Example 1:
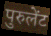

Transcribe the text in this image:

पुरुलेंट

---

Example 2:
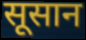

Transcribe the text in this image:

सूसान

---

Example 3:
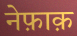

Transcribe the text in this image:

नेफ़ाक़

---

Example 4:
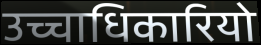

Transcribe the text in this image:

उच्चाधिकारियो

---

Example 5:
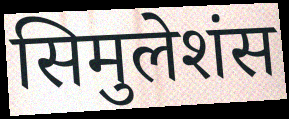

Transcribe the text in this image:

सिमुलेशंस